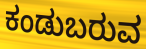
ಕಂಡುಬರುವ